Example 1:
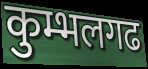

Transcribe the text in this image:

कुम्भलगढ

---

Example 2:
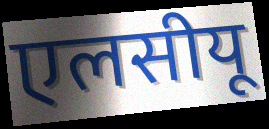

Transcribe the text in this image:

एलसीयू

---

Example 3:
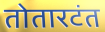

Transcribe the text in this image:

तोतारटंत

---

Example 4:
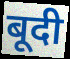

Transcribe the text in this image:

बूदी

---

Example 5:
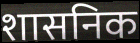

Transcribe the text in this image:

शासनिक